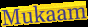
Mukaam